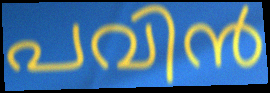
പവിൻ